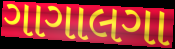
ગાગાલગા